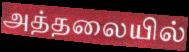
அத்தலையில்